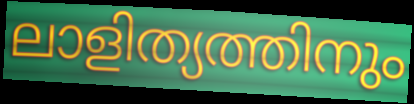
ലാളിത്യത്തിനും